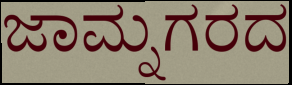
ಜಾಮ್ನಗರದ